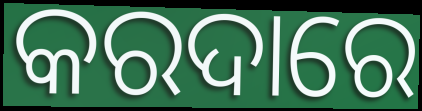
କରଦାରେ